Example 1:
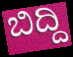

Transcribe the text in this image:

ಬಿದ್ದಿ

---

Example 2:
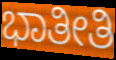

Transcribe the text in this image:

ಭಾತೀತಿ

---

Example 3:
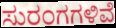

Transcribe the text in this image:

ಸುರಂಗಗಳಿವೆ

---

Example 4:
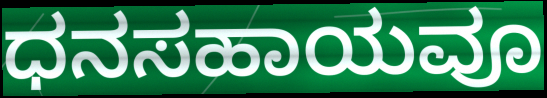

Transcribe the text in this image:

ಧನಸಹಾಯವೂ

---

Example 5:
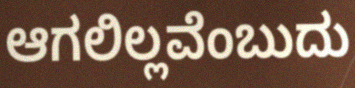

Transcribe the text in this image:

ಆಗಲಿಲ್ಲವೆಂಬುದು